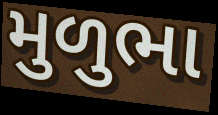
મુળુભા